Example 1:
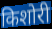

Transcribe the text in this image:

किशोरी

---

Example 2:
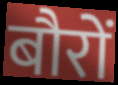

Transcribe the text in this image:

बौरों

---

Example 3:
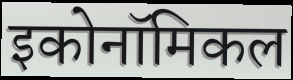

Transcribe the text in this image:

इकोनॉमिकल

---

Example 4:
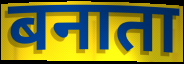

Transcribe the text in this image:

बनाता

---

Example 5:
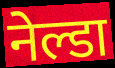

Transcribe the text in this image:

नेल्डा